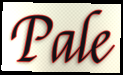
Pale